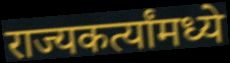
राज्यकर्त्यांमध्ये